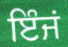
ਇੰਜਂ